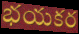
భయకర